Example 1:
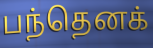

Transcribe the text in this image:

பந்தெனக்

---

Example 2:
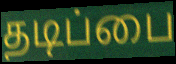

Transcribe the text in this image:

தடிப்பை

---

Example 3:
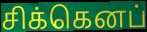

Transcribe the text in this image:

சிக்கெனப்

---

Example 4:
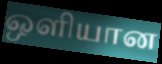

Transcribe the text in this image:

ஒளியான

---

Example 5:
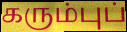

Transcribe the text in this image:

கரும்புப்